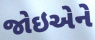
જોઇએને